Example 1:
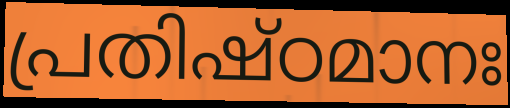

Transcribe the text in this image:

പ്രതിഷ്ഠമാനഃ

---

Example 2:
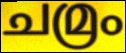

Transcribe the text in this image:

ചമ്രം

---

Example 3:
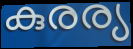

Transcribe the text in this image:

കുരര്യ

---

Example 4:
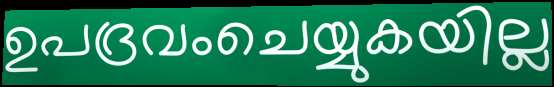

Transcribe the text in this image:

ഉപദ്രവംചെയ്യുകയില്ല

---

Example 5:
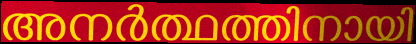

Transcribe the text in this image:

അനർത്ഥത്തിനായി